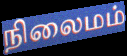
நிலைமம்